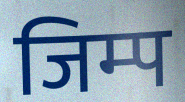
जिम्प